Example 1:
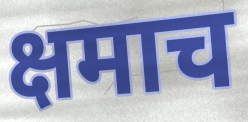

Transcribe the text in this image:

क्षमाच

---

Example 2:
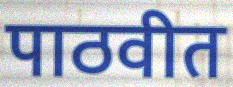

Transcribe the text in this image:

पाठवीत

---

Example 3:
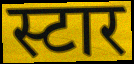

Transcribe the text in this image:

स्टार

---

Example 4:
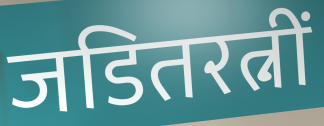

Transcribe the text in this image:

जडितरत्नीं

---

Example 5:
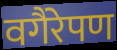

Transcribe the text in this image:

वगैरेपण